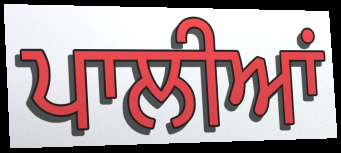
ਪਾਲੀਆਂ